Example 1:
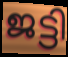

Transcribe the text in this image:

ജട്ടി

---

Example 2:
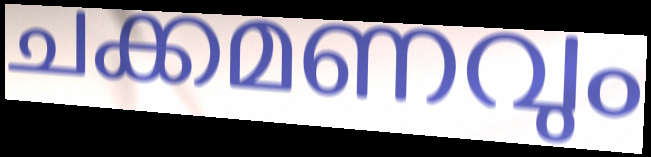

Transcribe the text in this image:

ചക്കമണവും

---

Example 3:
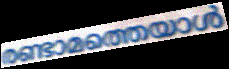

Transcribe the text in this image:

രണ്ടാമത്തെയാൾ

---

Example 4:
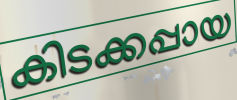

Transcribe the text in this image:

കിടക്കപ്പായ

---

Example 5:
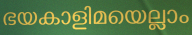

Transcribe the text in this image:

ഭയകാളിമയെല്ലാം